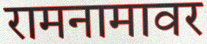
रामनामावर